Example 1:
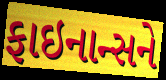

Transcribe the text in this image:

ફાઇનાન્સને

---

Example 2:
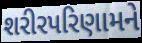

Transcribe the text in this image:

શરીરપરિણામને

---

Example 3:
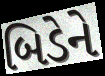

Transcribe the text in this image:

બિડેને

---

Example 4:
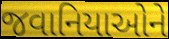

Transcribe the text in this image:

જવાનિયાઓને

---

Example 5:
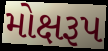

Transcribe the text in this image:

મોક્ષરૂપ